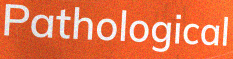
Pathological